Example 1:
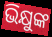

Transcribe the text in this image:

ଭିକ୍ଷୁଙ୍କ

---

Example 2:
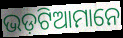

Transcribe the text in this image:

ଭଡ଼ଟିଆମାନେ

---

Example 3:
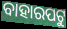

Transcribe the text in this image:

ବାହାରପଟୁ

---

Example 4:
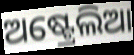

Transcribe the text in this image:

ଅଷ୍ଟ୍ରେଲିଆ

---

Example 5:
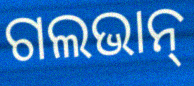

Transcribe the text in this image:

ଗଲଭାନ୍